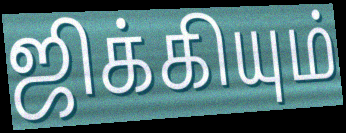
ஜிக்கியும்